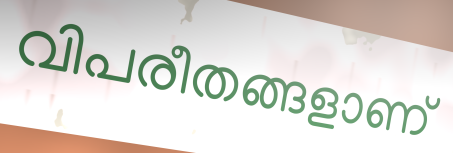
വിപരീതങ്ങളാണ്